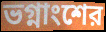
ভগ্নাংশের